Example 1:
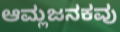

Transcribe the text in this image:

ಆಮ್ಲಜನಕವು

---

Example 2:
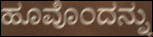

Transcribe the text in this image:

ಹೂವೊಂದನ್ನು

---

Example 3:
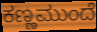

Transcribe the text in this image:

ಕಣ್ಣಮುಂದೆ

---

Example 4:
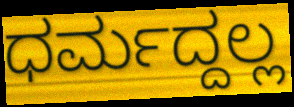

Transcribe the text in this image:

ಧರ್ಮದ್ದಲ್ಲ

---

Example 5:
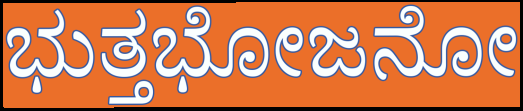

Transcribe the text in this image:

ಭುತ್ತಭೋಜನೋ